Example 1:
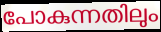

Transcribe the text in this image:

പോകുന്നതിലും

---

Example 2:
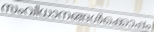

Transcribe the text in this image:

സംവിധാനങ്ങൾക്കൊപ്പം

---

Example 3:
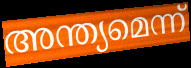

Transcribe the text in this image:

അന്ത്യമെന്ന്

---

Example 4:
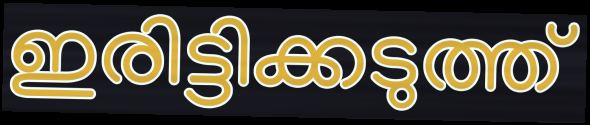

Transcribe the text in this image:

ഇരിട്ടിക്കടുത്ത്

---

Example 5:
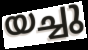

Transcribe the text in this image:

യച്ചു